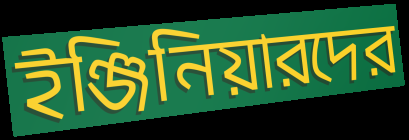
ইঞ্জিনিয়ারদের